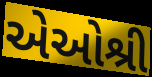
એઓશ્રી